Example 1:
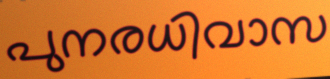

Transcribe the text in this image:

പുനരധിവാസ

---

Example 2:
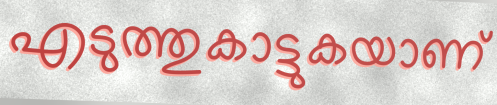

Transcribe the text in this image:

എടുത്തുകാട്ടുകയാണ്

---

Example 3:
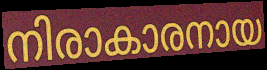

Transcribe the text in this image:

നിരാകാരനായ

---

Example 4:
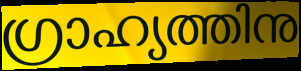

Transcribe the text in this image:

ഗ്രാഹ്യത്തിനു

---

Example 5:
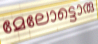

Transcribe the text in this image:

മേലോട്ടൊരു